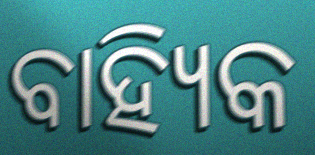
ବାହ୍ୟିକ